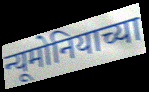
न्यूमोनियाच्या